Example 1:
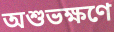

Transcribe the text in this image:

অশুভক্ষণে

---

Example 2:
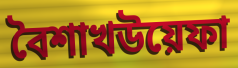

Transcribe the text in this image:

বৈশাখউয়েফা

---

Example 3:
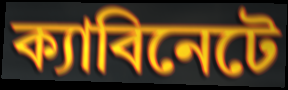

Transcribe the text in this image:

ক্যাবিনেটে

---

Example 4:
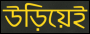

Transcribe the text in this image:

উড়িয়েই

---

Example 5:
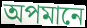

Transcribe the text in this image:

অপমানে